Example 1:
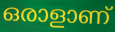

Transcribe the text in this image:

ഒരാളാണ്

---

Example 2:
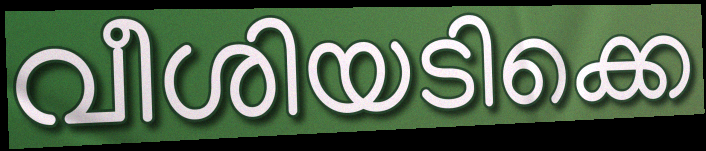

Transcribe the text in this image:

വീശിയടിക്കെ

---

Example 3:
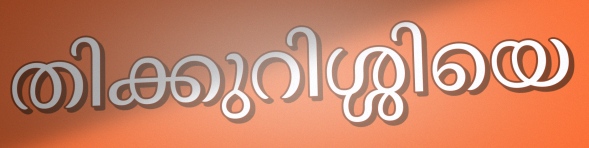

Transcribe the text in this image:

തിക്കുറിശ്ശിയെ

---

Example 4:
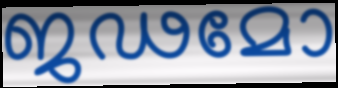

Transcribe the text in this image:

ജഢമോ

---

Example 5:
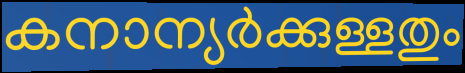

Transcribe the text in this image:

കനാന്യർക്കുള്ളതും